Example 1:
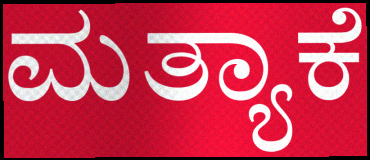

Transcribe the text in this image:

ಮತ್ಯಾಕೆ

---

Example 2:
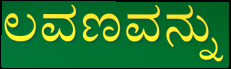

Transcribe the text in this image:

ಲವಣವನ್ನು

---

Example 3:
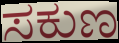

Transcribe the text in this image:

ಸಕುಣ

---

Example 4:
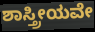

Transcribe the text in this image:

ಶಾಸ್ತ್ರೀಯವೇ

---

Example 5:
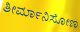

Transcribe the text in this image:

ತೀರ್ಮಾನಿಸೋಣ